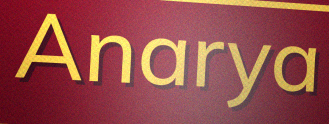
Anarya